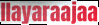
Ilayaraajaa